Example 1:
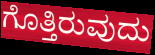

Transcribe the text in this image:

ಗೊತ್ತಿರುವುದು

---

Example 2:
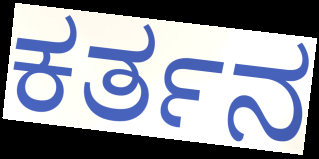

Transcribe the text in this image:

ಕರ್ತನ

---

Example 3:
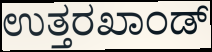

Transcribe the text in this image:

ಉತ್ತರಖಾಂಡ್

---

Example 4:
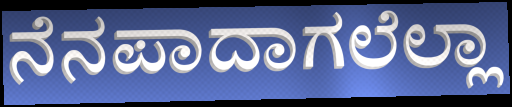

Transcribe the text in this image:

ನೆನಪಾದಾಗಲೆಲ್ಲಾ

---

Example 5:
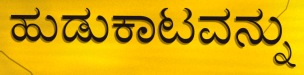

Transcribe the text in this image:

ಹುಡುಕಾಟವನ್ನು